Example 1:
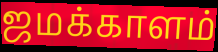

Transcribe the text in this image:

ஜமக்காளம்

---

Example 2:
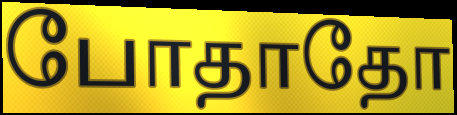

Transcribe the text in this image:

போதாதோ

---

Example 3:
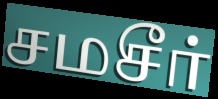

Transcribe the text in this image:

சமசீர்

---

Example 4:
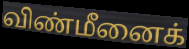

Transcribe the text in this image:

விண்மீனைக்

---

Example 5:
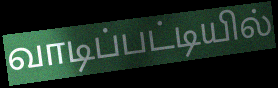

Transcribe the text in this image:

வாடிப்பட்டியில்